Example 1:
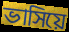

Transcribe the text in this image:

ভাসিয়ে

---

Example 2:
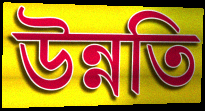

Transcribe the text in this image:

উন্নতি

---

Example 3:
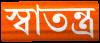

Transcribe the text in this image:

স্বাতন্ত্র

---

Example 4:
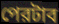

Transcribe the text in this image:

পেরটাব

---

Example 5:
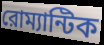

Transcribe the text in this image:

রোম্যান্টিক